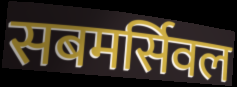
सबमर्सिवल